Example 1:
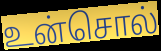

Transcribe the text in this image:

உன்சொல்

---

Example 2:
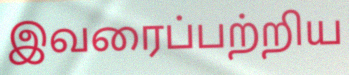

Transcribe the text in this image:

இவரைப்பற்றிய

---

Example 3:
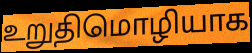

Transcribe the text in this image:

உறுதிமொழியாக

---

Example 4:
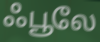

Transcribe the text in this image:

ஃபூலே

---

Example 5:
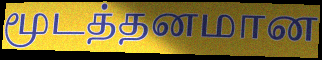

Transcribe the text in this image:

மூடத்தனமான